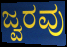
ಜ್ವರವು